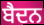
ਬੈਦਨ